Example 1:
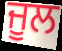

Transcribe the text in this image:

ਜੂਲ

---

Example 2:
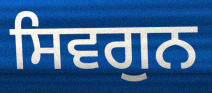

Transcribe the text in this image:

ਸਿਵਗੁਨ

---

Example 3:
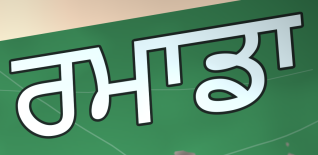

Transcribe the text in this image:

ਰਮਾਡਾ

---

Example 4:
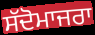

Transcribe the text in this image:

ਸੱਦੋਮਾਜਰਾ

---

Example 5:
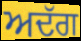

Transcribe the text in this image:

ਅਦੱਗ